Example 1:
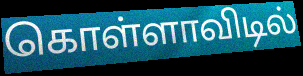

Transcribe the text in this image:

கொள்ளாவிடில்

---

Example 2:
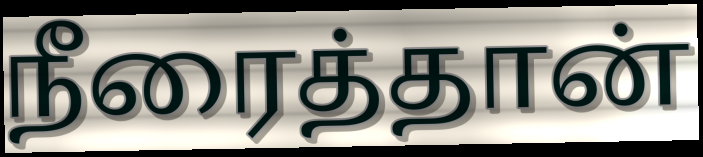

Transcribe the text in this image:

நீரைத்தான்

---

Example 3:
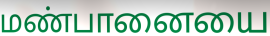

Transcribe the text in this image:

மண்பானையை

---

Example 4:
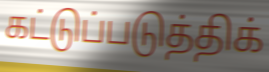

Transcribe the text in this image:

கட்டுப்படுத்திக்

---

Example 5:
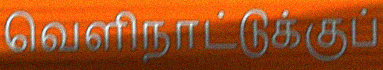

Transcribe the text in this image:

வெளிநாட்டுக்குப்